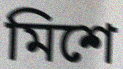
মিশে